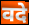
वदे